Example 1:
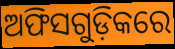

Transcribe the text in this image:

ଅଫିସଗୁଡ଼ିକରେ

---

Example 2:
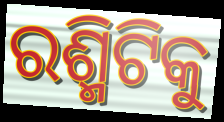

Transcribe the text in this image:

ରଶ୍ମିଟିକୁ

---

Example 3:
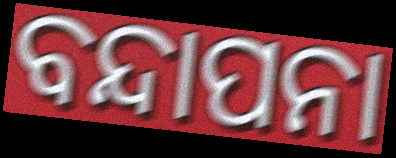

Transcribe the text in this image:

ବନ୍ଦାପନା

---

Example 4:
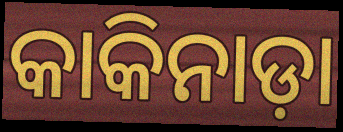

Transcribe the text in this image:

କାକିନାଡ଼ା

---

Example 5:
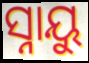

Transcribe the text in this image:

ସ୍ନାୟୁ